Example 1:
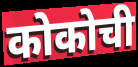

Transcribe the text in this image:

कोकोची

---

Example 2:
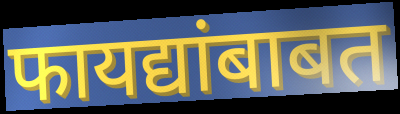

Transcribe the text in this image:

फायद्यांबाबत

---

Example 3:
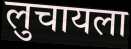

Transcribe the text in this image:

लुचायला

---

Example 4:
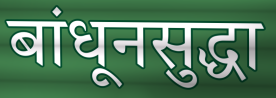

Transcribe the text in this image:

बांधूनसुद्धा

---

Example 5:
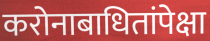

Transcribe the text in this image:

करोनाबाधितांपेक्षा